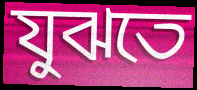
যুঝতে